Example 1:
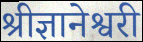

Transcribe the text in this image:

श्रीज्ञानेश्वरी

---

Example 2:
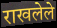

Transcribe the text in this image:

राखलेले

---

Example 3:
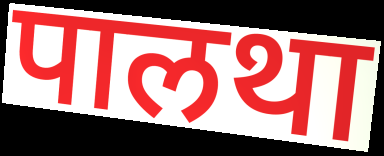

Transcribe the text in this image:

पालथा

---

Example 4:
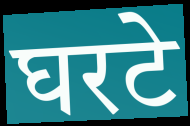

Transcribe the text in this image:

घरटे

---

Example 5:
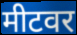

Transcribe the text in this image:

मीटवर